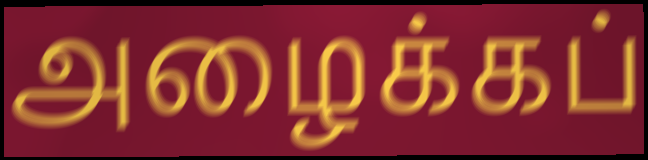
அழைக்கப்